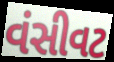
વંસીવટ